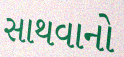
સાથવાનો